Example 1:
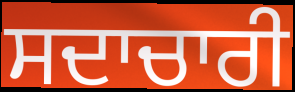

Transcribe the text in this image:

ਸਦਾਚਾਰੀ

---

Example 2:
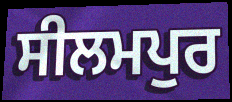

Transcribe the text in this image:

ਸੀਲਮਪੁਰ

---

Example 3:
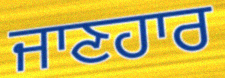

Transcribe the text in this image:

ਜਾਣਹਾਰ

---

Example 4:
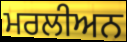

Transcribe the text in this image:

ਮਰਲੀਅਨ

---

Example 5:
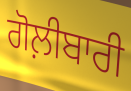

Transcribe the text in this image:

ਗੋਲ਼ੀਬਾਰੀ